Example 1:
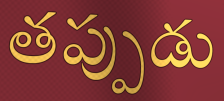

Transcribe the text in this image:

తప్పుడు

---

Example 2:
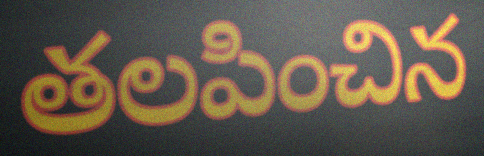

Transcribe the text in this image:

తలపించిన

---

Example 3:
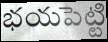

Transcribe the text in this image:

భయపెట్టి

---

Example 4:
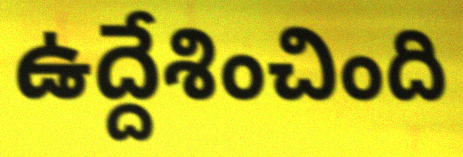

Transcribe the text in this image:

ఉద్దేశించింది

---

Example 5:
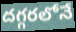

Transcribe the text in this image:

దగ్గరలోనే